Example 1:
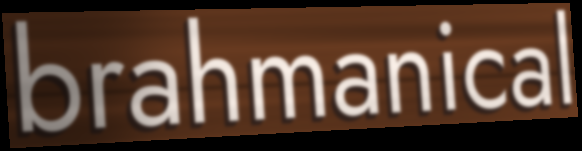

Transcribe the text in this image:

brahmanical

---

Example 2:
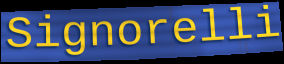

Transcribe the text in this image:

Signorelli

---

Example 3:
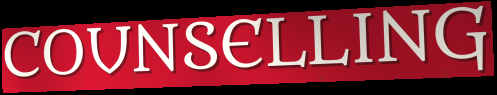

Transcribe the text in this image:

COUNSELLING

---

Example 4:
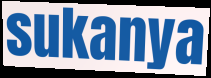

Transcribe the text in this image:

sukanya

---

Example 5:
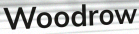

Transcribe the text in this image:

Woodrow